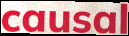
causal